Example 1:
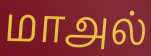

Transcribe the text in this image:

மாஅல்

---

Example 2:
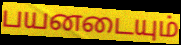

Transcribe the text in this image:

பயனடையும்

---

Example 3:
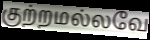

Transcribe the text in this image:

குற்றமல்லவே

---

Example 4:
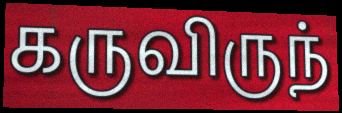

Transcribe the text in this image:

கருவிருந்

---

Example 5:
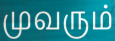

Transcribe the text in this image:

முவரும்